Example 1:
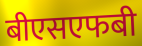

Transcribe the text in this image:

बीएसएफबी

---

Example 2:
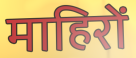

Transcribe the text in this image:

माहिरों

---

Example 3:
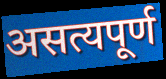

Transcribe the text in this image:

असत्यपूर्ण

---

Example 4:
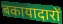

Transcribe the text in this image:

बकायादारों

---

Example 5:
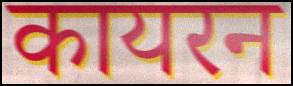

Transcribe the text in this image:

कायरन